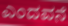
ಎಂದವನೆ